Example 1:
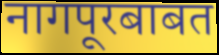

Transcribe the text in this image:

नागपूरबाबत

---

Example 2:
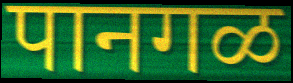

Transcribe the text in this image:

पानगळ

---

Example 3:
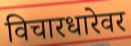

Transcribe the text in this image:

विचारधारेवर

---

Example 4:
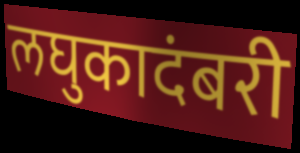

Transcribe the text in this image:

लघुकादंबरी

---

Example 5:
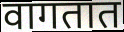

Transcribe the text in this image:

वागतात